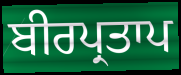
ਬੀਰਪ੍ਰਤਾਪ